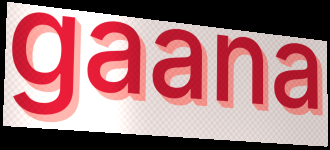
gaana